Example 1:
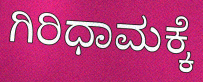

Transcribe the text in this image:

ಗಿರಿಧಾಮಕ್ಕೆ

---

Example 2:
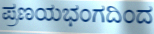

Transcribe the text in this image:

ಪ್ರಣಯಭಂಗದಿಂದ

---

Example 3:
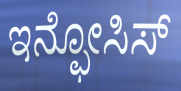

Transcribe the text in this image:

ಇನ್ಫೋಸಿಸ್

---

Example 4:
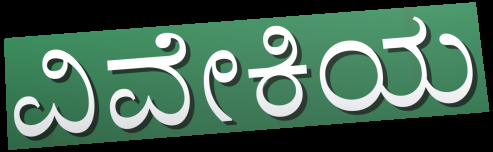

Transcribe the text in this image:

ವಿವೇಕಿಯ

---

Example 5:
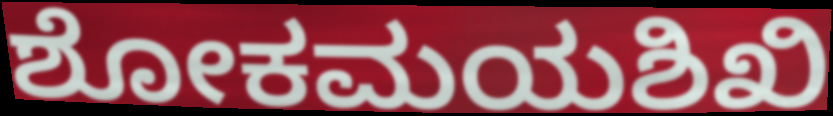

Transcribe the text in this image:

ಶೋಕಮಯಶಿಖಿ